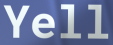
Yell